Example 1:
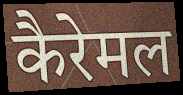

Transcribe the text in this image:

कैरेमल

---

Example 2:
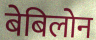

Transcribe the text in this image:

बेबिलोन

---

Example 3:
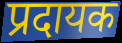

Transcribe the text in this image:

प्रदायक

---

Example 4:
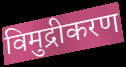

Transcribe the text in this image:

विमुद्रीकरण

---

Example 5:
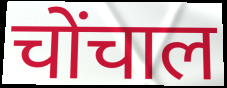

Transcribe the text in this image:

चोंचाल